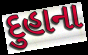
દુહાના